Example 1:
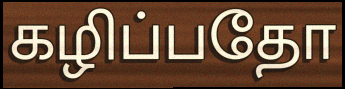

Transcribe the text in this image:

கழிப்பதோ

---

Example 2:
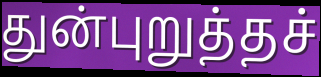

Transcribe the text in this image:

துன்புறுத்தச்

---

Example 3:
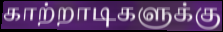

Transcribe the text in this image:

காற்றாடிகளுக்கு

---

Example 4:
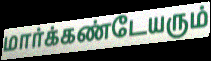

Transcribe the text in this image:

மார்க்கண்டேயரும்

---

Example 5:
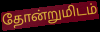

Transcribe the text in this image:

தோன்றுமிடம்